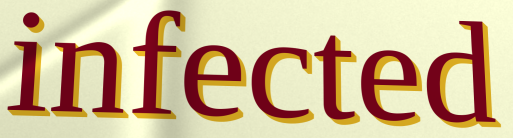
infected